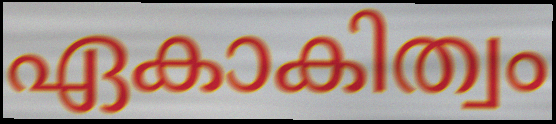
ഏകാകിത്വം